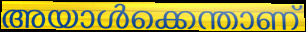
അയാൾക്കെന്താണ്